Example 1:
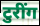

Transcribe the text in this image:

टुरींग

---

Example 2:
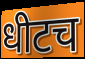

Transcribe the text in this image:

धीटच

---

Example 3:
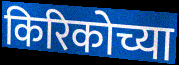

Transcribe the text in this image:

किरिकोच्या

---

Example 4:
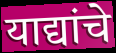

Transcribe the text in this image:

याद्यांचे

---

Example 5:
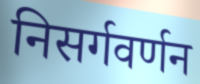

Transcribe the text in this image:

निसर्गवर्णन